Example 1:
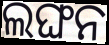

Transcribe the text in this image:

ଲଙ୍ଘନ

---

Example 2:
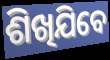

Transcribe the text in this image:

ଶିଖିଯିବେ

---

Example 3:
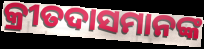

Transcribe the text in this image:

କ୍ରୀତଦାସମାନଙ୍କ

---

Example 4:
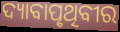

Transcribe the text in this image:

ଦ୍ୟାବାପୃଥିବୀର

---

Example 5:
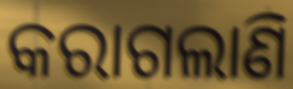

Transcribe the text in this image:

କରାଗଲାଣି